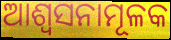
ଆଶ୍ୱସନାମୂଳକ